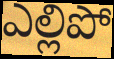
ఎల్లిపో